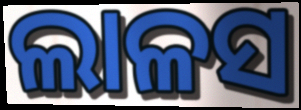
ଲାଳସ